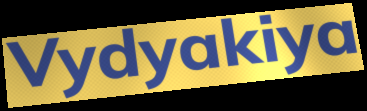
Vydyakiya